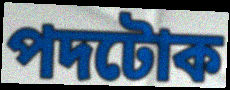
পদটোক